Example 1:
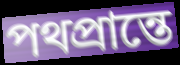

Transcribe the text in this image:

পথপ্রান্তে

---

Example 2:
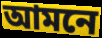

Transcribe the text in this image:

আমনে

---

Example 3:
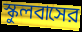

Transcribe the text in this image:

স্কুলবাসের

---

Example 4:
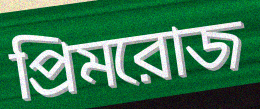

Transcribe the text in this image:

প্রিমরোজ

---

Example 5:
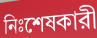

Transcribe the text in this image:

নিঃশেষকারী